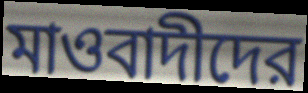
মাওবাদীদের